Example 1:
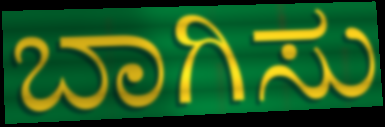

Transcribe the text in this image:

ಬಾಗಿಸು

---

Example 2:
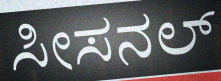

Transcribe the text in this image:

ಸೀಸನಲ್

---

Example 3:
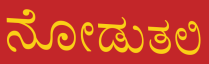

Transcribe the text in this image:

ನೋಡುತಲಿ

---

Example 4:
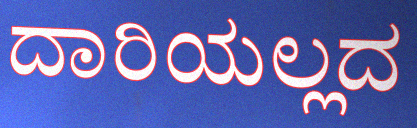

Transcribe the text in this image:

ದಾರಿಯಲ್ಲದ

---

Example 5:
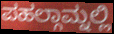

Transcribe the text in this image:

ಪಹಲ್ಗಾಮ್ನಲ್ಲಿ